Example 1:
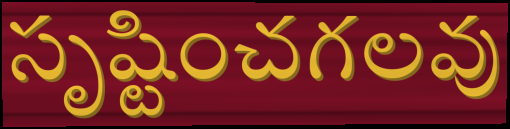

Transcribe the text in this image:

సృష్టించగలవు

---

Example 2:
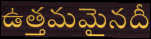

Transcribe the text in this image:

ఉత్తమమైనదీ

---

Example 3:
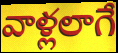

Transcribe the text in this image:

వాళ్లలాగే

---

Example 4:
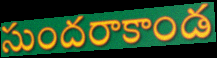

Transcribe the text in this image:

సుందరాకాండ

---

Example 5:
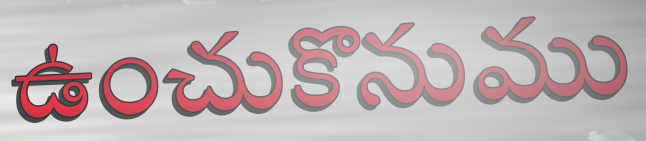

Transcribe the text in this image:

ఉంచుకొనుము